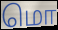
மொ